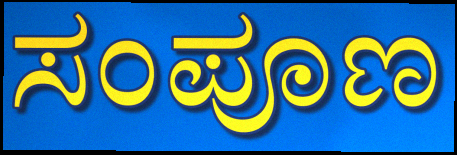
ಸಂಪೂಣ